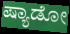
ಷ್ಯಾಡೋ